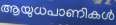
ആയുധപാണികൾ